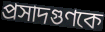
প্রসাদগুণকে